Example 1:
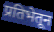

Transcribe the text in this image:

प्रतिभेतून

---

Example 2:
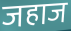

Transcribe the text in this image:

जहाज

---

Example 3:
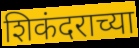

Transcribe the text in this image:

शिकंदराच्या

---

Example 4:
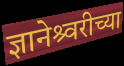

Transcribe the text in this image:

ज्ञानेश्र्वरीच्या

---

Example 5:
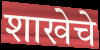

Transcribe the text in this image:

शाखेचे